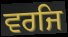
ਵਰਜਿ